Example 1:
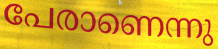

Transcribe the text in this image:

പേരാണെന്നു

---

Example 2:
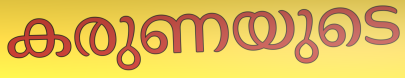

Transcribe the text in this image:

കരുണയുടെ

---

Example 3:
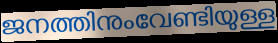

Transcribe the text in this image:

ജനത്തിനുംവേണ്ടിയുള്ള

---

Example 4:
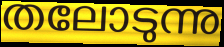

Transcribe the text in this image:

തലോടുന്നു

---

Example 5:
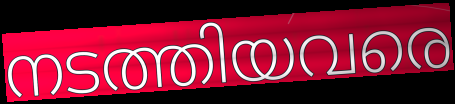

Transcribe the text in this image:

നടത്തിയവരെ